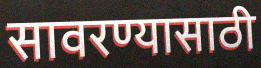
सावरण्यासाठी